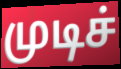
முடிச்